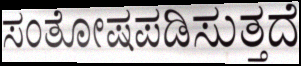
ಸಂತೋಷಪಡಿಸುತ್ತದೆ